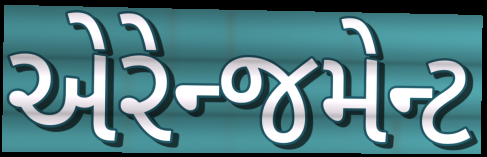
એરેન્જમેન્ટ